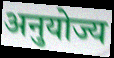
अनुयोज्य